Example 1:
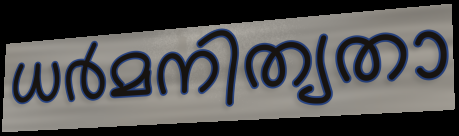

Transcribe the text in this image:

ധർമനിത്യതാ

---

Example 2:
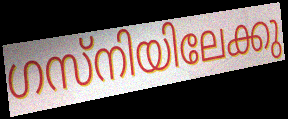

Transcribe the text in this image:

ഗസ്നിയിലേക്കു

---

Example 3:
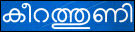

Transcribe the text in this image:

കീറത്തുണി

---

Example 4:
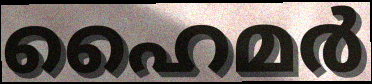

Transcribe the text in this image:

ഹൈമർ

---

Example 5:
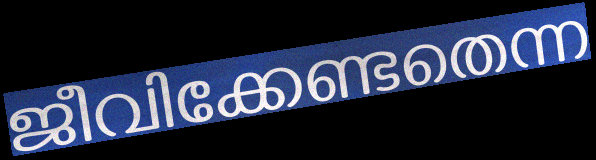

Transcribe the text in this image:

ജീവിക്കേണ്ടതെന്ന